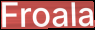
Froala